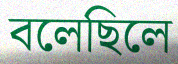
বলেছিলে